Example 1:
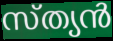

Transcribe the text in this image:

സ്‌ത്യൻ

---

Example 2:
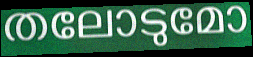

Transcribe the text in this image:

തലോടുമോ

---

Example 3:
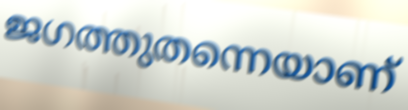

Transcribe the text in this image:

ജഗത്തുതന്നെയാണ്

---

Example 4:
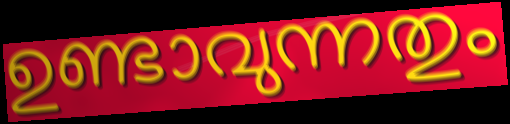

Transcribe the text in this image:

ഉണ്ടാവുന്നതും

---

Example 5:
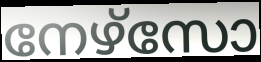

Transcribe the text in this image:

നേഴ്സോ